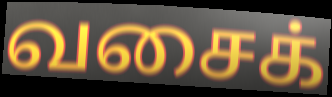
வசைக்